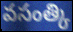
వసంత్కి